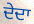
ਦੇਦਾ